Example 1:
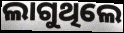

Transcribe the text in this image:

ଲାଗୁଥିଲେ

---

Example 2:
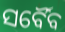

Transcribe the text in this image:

ସର୍ବୈବ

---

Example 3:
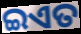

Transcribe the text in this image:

ଇଏତ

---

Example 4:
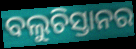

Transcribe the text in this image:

ବଲୁଚିସ୍ତାନର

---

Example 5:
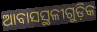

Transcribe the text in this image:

ଆବାସସ୍ଥଳୀଗୁଡ଼ିକ